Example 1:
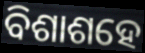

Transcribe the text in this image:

ବିଶାଶହେ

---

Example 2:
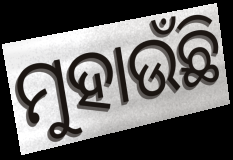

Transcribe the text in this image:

ମୁହାଉଁଛି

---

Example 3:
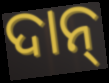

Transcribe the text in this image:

ଦାନ୍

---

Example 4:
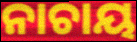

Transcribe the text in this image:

ନାଚାୟ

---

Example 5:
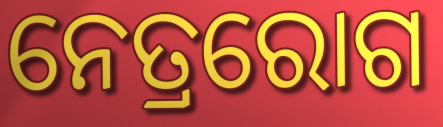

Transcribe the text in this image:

ନେତ୍ରରୋଗ